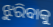
ଝୁରିବାକୁ